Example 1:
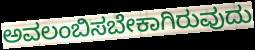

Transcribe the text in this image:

ಅವಲಂಬಿಸಬೇಕಾಗಿರುವುದು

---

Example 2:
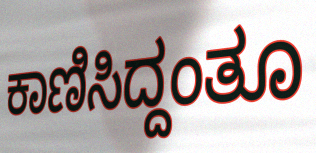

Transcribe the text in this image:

ಕಾಣಿಸಿದ್ದಂತೂ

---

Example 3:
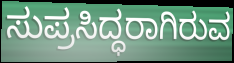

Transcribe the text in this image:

ಸುಪ್ರಸಿದ್ಧರಾಗಿರುವ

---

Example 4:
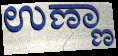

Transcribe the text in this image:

ಉಣ್ಣಾ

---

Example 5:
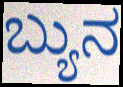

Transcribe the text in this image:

ಬ್ಯುನ